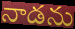
నాడను